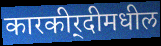
कारकीर्दीमधील